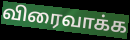
விரைவாக்க